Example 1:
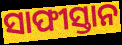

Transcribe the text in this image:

ସାଫୀସ୍ତାନ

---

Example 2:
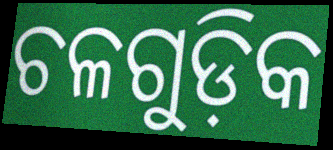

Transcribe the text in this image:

ଚଳଗୁଡ଼ିକ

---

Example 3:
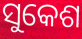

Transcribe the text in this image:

ସୁକେଶ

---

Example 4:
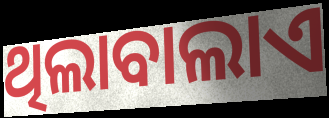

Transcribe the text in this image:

ଥିଲାବାଲାଏ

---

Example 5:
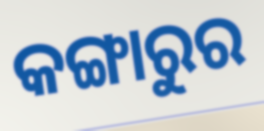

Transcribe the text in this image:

କଙ୍ଗାରୁର